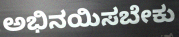
ಅಭಿನಯಿಸಬೇಕು